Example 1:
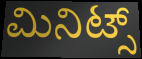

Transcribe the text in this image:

ಮಿನಿಟ್ಸ್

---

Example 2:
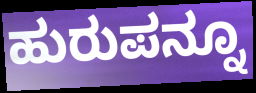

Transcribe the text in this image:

ಹುರುಪನ್ನೂ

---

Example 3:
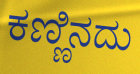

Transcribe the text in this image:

ಕಣ್ಣಿನದು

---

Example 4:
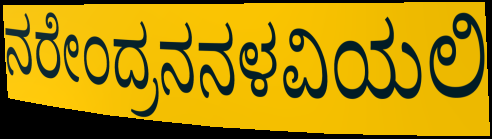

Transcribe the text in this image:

ನರೇಂದ್ರನನಳವಿಯಲಿ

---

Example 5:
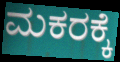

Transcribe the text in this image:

ಮಕರಕ್ಕೆ